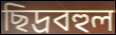
ছিদ্রবহুল